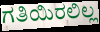
ಗತಿಯಿರಲಿಲ್ಲ